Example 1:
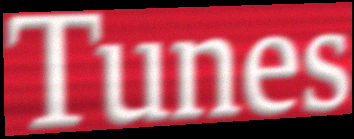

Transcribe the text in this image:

Tunes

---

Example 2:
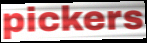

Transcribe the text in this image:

pickers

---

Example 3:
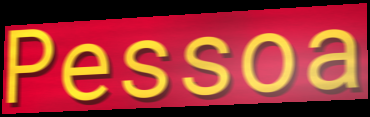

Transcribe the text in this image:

Pessoa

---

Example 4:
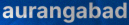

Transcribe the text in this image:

aurangabad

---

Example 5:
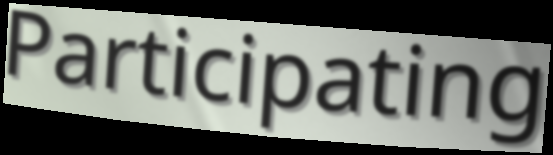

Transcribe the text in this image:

Participating